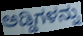
ಅಡ್ಡಿಗಳನ್ನು